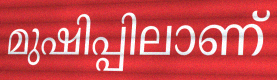
മുഷിപ്പിലാണ്